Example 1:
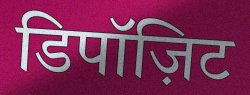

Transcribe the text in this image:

डिपॉज़िट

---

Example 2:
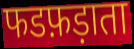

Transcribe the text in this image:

फडफ़ड़ाता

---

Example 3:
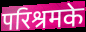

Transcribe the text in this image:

परिश्रमके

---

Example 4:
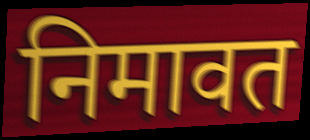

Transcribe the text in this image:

निमावत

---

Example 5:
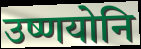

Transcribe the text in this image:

उष्णयोनि